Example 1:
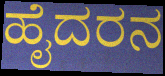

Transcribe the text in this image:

ಹೈದರನ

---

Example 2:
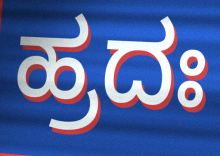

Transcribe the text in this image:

ಹ್ರದಃ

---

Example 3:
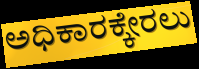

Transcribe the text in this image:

ಅಧಿಕಾರಕ್ಕೇರಲು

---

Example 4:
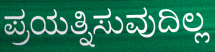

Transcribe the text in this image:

ಪ್ರಯತ್ನಿಸುವುದಿಲ್ಲ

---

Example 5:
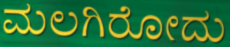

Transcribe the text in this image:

ಮಲಗಿರೋದು